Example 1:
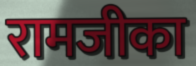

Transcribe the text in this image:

रामजीका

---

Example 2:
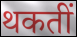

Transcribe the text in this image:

थकतीं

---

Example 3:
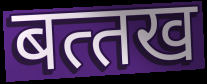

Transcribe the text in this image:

बत्‍तख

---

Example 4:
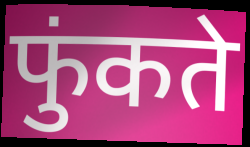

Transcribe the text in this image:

फुंकते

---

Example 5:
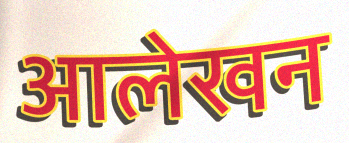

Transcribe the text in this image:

आलेखन